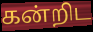
கன்றிட